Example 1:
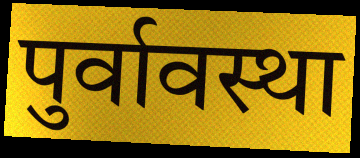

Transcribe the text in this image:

पुर्वावस्था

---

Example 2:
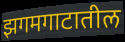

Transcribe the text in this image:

झगमगाटातील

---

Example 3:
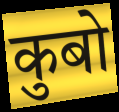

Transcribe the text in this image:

कुबो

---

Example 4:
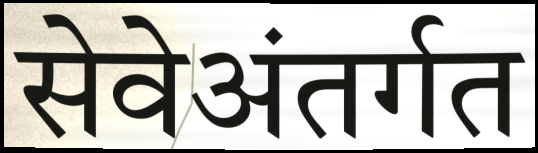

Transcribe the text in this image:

सेवेअंतर्गत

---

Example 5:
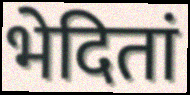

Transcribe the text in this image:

भेदितां